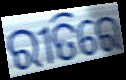
ରୀତିରେ